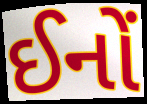
ઈનોં